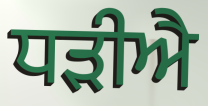
ਧੜੀਐ